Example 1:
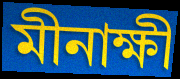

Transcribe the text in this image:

মীনাক্ষী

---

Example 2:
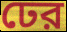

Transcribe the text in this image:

ঢের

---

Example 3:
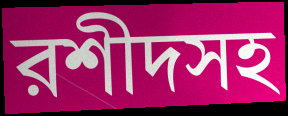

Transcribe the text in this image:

রশীদসহ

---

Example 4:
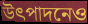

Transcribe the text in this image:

উৎপাদনেও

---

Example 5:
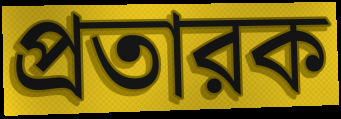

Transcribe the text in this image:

প্রতারক